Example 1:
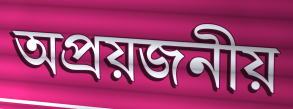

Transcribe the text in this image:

অপ্রয়জনীয়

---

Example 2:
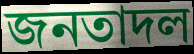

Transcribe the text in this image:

জনতাদল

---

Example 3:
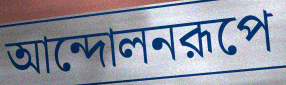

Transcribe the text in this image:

আন্দোলনরূপে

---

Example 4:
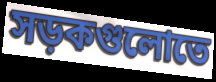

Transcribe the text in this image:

সড়কগুলোতে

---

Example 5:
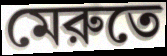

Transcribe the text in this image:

মেরুতে